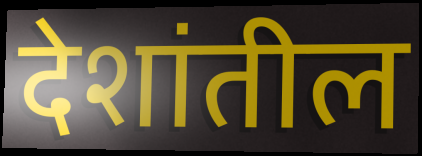
देशांतील